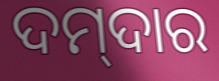
ଦମ୍‌ଦାର